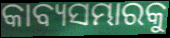
କାବ୍ୟସମ୍ଭାରକୁ